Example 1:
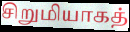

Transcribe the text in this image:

சிறுமியாகத்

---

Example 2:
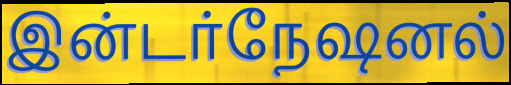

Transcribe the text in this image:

இன்டர்நேஷனல்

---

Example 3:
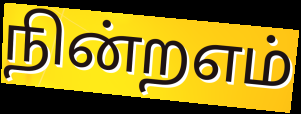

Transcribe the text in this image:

நின்றஎம்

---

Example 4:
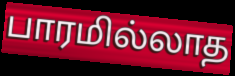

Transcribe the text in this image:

பாரமில்லாத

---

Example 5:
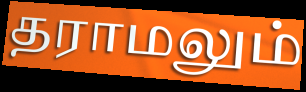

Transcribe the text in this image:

தராமலும்